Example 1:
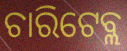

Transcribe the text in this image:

ଚାରିଟେବ୍ଲ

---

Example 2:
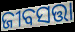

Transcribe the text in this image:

ଜୀବସତ୍ତା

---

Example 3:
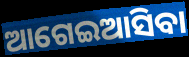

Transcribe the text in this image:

ଆଗେଇଆସିବା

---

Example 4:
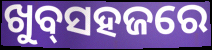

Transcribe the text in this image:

ଖୁବ୍‌ସହଜରେ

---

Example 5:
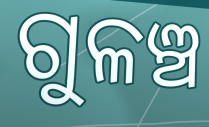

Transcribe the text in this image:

ଗୁଳଞ୍ଚ